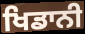
ਖਿਡਾਨੀ